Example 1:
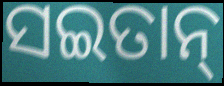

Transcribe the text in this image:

ସଇତାନ୍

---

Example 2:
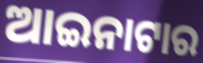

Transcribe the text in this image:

ଆଇନାଟାର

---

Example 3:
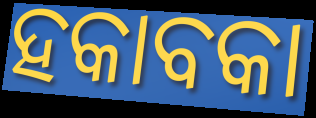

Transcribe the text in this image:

ହକାବକା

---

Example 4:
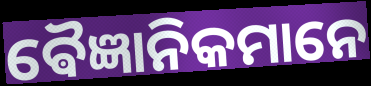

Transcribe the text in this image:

ଵୈଜ୍ଞାନିକମାନେ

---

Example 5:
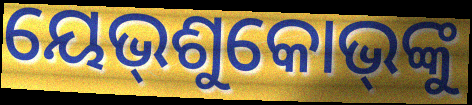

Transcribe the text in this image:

ୟେଭ୍‌ଶୁକୋଭ୍‌ଙ୍କୁ